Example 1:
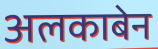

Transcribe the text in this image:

अलकाबेन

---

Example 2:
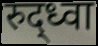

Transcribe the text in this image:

रुद्ध्वा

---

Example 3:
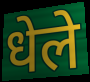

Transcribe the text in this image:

धेले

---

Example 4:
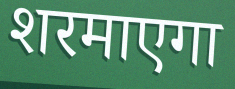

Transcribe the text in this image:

शरमाएगा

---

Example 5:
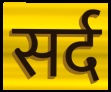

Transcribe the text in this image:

सर्द